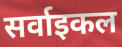
सर्वाइकल